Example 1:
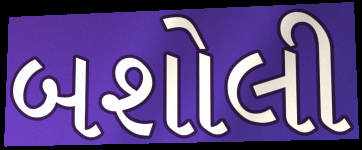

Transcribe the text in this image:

બશોલી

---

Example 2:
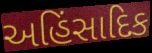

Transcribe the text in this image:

અહિંસાદિક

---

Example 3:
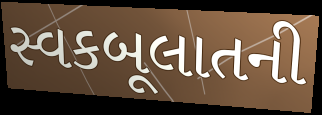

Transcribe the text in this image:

સ્વકબૂલાતની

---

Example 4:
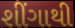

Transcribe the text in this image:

શીંગાથી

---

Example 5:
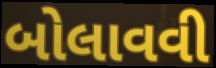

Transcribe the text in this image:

બોલાવવી